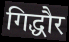
गिद्धौर